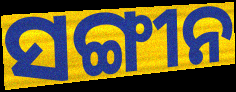
ସଙ୍ଗୀନ